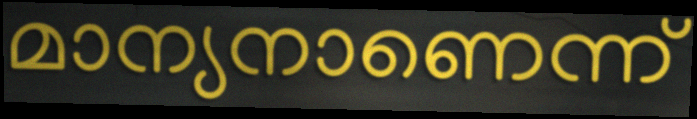
മാന്യനാണെന്ന്